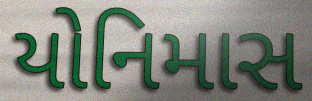
યોનિમાસ